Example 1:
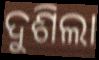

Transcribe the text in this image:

ଦୁଶିଲା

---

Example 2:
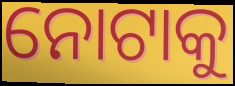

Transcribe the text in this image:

ନୋଟାକୁ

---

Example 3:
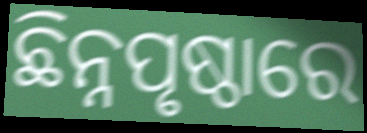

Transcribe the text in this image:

ଛିନ୍ନପୃଷ୍ଠାରେ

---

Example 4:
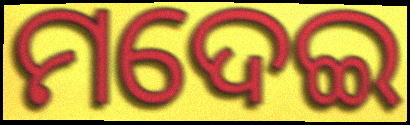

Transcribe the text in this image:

ମଦେଇ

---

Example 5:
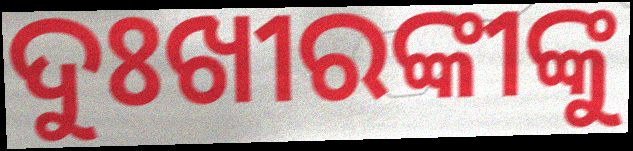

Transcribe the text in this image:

ଦୁଃଖୀରଙ୍କୀଙ୍କୁ